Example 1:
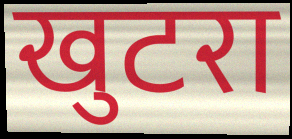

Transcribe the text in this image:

खुटरा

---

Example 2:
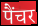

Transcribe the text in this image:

पैंचर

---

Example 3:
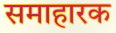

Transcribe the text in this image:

समाहारक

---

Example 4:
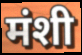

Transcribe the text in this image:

मंशी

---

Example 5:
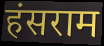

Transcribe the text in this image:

हंसराम